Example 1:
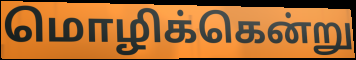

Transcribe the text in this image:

மொழிக்கென்று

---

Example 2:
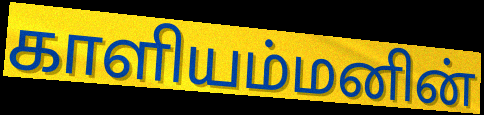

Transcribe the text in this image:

காளியம்மனின்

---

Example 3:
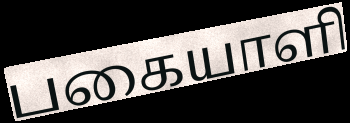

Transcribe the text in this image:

பகையாளி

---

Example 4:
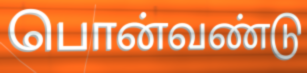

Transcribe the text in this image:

பொன்வண்டு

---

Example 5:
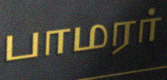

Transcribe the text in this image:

பாமரர்